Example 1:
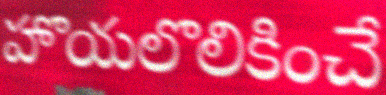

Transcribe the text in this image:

హొయలొలికించే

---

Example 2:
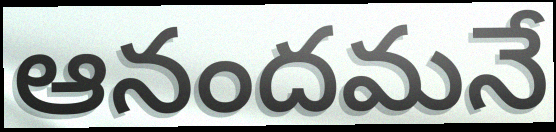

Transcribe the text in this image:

ఆనందమనే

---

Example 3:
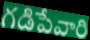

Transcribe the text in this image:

గడిపేవారి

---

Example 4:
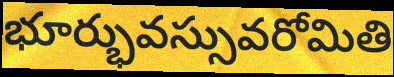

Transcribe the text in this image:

భూర్భువస్సువరోమితి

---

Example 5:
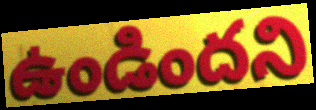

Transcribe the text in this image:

ఉండిందని